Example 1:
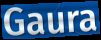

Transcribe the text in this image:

Gaura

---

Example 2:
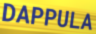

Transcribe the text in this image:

DAPPULA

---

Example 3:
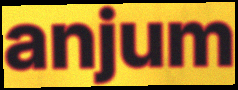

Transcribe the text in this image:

anjum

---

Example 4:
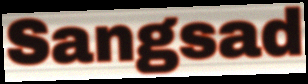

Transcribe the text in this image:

Sangsad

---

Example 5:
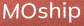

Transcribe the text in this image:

MOship